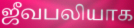
ஜீவபலியாக